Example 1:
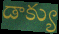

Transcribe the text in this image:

డాక్యు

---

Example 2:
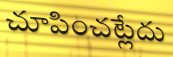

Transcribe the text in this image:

చూపించట్లేదు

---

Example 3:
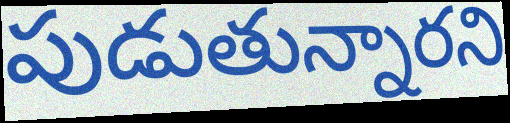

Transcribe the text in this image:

పుడుతున్నారని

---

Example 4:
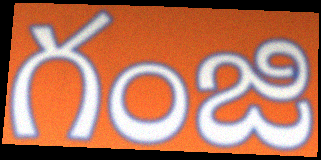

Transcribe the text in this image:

గంజి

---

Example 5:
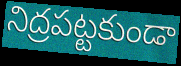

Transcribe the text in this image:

నిద్రపట్టకుండా